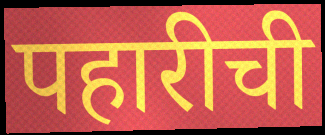
पहारीची